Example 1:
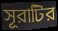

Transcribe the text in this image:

সূরাটির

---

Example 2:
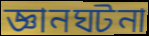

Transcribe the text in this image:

জ্ঞানঘটনা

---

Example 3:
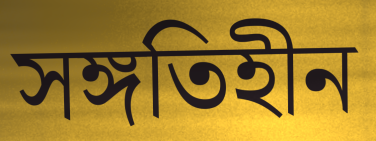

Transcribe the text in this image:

সঙ্গতিহীন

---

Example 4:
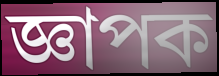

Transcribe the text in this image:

জ্ঞাপক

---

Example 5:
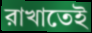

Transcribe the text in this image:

রাখাতেই